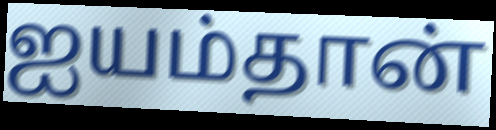
ஐயம்தான்